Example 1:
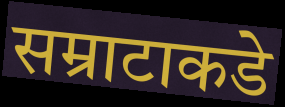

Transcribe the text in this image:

सम्राटाकडे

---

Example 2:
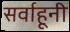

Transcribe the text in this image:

सर्वाहूनी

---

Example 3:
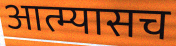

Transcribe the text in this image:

आत्म्यासच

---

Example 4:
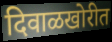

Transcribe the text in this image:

दिवाळखोरीत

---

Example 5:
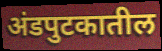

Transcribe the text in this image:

अंडपुटकातील